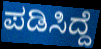
ಪಡಿಸಿದ್ದೆ